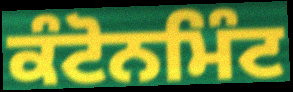
ਕੰਟੋਨਮਿੰਟ